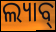
ଲ୍ୟାବ୍